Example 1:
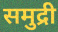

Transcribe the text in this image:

समुद्री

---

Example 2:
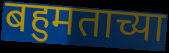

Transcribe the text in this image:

बहुमताच्या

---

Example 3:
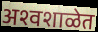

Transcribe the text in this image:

अश्वशाळेत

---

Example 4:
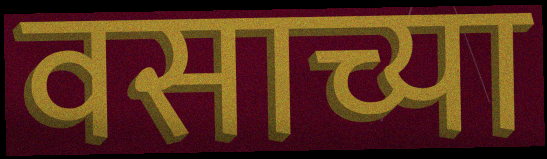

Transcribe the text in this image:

वसाच्या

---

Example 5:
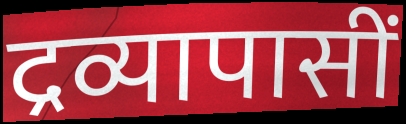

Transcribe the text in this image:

द्रव्यापासीं